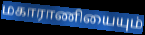
மகாராணியையும்